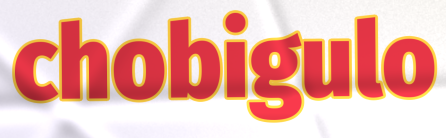
chobigulo